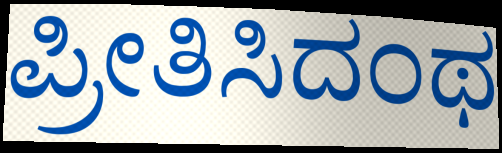
ಪ್ರೀತಿಸಿದಂಥ